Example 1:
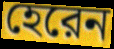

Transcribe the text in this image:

হেরেন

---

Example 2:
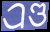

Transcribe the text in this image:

এণ্ড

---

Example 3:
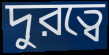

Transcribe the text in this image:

দুরত্বে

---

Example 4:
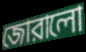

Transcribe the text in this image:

জোরালো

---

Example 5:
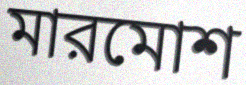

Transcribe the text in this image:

মারমোশ